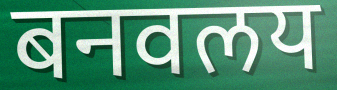
बनवलय